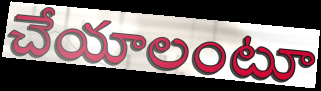
చేయాలంటూ